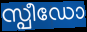
സ്പീഡോ